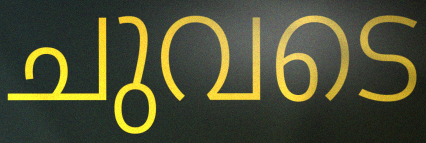
ചുവടെ